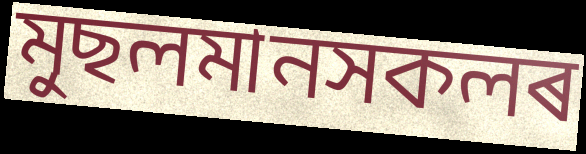
মুছলমানসকলৰ